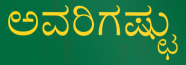
ಅವರಿಗಷ್ಟು